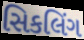
સિકલિંગ